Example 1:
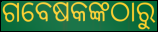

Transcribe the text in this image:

ଗବେଷକଙ୍କଠାରୁ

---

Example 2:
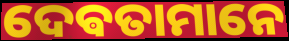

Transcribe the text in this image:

ଦେଵତାମାନେ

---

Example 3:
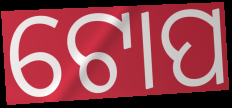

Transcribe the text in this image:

ଟୋପ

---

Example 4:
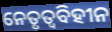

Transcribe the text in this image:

ନେତୃତ୍ୱବିହୀନ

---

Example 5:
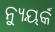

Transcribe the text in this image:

ନ୍ୟୁୟର୍କ